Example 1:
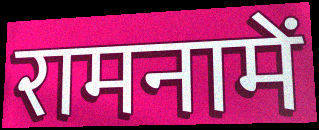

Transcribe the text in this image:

रामनामें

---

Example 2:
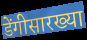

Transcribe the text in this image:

डेंगीसारख्या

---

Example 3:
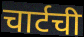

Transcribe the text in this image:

चार्टची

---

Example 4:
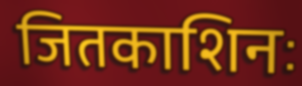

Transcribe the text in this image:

जितकाशिनः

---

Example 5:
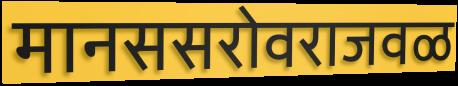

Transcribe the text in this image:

मानससरोवराजवळ